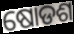
ଷୋଡଶ